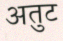
अतुट